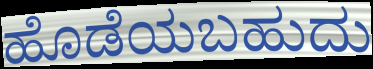
ಹೊಡೆಯಬಹುದು